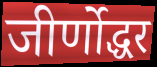
जीर्णोद्धर